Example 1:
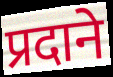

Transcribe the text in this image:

प्रदाने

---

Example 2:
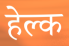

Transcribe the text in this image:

हेल्क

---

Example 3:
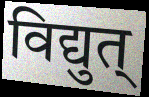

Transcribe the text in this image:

विद्युत्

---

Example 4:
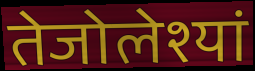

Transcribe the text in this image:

तेजोलेश्यां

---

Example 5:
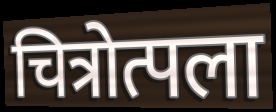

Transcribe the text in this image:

चित्रोत्पला